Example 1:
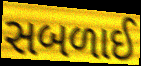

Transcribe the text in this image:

સબળાઈ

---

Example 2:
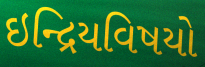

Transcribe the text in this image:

ઇન્દ્રિયવિષયો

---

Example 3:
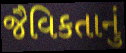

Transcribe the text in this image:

જૈવિકતાનું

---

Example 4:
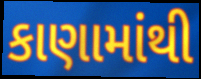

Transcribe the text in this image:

કાણામાંથી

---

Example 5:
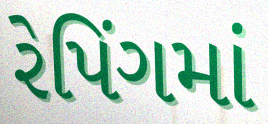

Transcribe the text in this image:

રેપિંગમાં